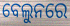
ବେଲୁନରେ